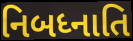
નિબધ્નાતિ